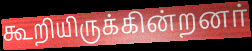
கூறியிருக்கின்றனர்